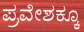
ಪ್ರವೇಶಕ್ಕೂ